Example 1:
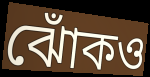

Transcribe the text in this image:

ঝোঁকও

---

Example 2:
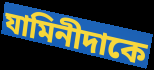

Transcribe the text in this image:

যামিনীদাকে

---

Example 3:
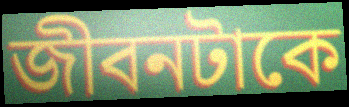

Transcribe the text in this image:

জীবনটাকে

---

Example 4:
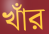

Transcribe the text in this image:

খাঁর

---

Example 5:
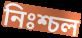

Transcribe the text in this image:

নিঃশ্চল